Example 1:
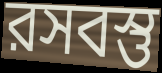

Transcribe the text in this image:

রসবস্তু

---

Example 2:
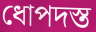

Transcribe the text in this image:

ধোপদস্ত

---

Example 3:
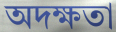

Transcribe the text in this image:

অদক্ষতা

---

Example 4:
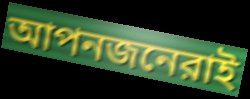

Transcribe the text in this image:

আপনজনেরাই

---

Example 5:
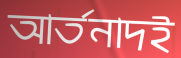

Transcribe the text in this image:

আর্তনাদই